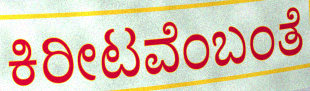
ಕಿರೀಟವೆಂಬಂತೆ